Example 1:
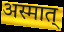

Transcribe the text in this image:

अस्मात्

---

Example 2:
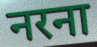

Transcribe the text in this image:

नरना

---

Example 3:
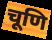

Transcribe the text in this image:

चूणि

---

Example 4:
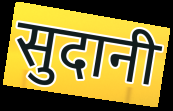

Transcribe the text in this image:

सुदानी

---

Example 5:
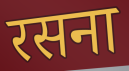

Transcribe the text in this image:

रसना